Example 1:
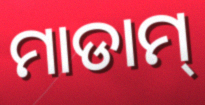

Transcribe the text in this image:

ମାଡାମ୍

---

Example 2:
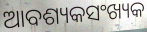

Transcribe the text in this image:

ଆବଶ୍ୟକସଂଖ୍ୟକ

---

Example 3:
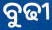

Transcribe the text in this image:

ବୁଢୀ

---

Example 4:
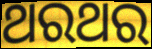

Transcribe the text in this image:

ଥରଥର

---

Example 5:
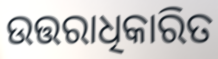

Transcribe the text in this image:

ଉତ୍ତରାଧିକାରିତ